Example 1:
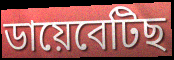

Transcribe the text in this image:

ডায়েবেটিছ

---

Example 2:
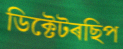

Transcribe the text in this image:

ডিক্টেটৰছিপ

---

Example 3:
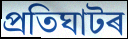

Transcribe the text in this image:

প্ৰতিঘাটৰ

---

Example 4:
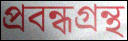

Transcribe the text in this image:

প্ৰবন্ধগ্ৰন্থ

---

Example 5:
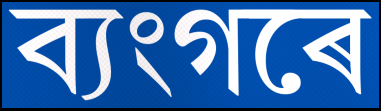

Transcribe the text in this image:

ব্যংগৰে